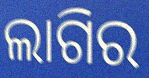
ଲାଗିର